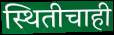
स्थितीचाही